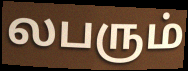
லபரும்